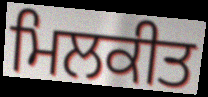
ਮਿਲਕੀਤ